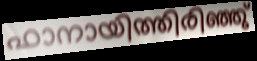
ഫാനായിത്തിരിഞ്ഞു്